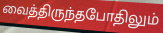
வைத்திருந்தபோதிலும்